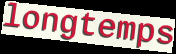
longtemps